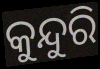
କୁନ୍ଦୁରି